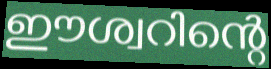
ഈശ്വറിന്റെ